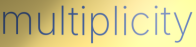
multiplicity